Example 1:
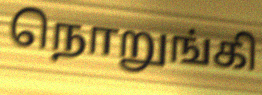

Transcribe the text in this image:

நொறுங்கி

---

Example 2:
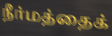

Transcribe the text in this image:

நீர்மத்தைக்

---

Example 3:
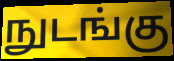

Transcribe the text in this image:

நுடங்கு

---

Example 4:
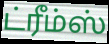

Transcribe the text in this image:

ட்ரீம்ஸ்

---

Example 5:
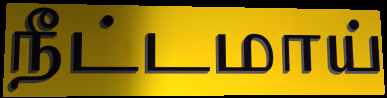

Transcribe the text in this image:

நீட்டமாய்